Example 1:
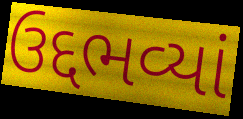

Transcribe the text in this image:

ઉદ્દભવ્યાં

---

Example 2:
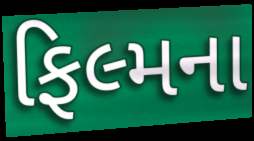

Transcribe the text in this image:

ફિલ્મના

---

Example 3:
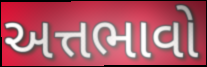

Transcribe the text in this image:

અત્તભાવો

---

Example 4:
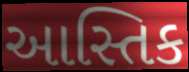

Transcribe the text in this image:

આસ્તિક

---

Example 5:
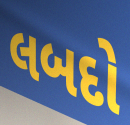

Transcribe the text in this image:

લબદો